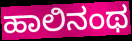
ಹಾಲಿನಂಥ